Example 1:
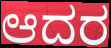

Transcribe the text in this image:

ಆದರ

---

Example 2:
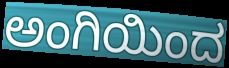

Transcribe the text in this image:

ಅಂಗಿಯಿಂದ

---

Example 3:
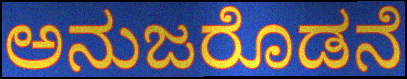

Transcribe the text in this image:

ಅನುಜರೊಡನೆ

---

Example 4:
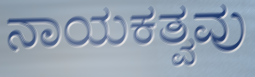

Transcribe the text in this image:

ನಾಯಕತ್ವವು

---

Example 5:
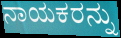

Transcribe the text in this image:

ನಾಯಕರನ್ನು